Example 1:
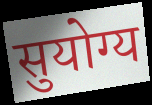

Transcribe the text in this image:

सुयोग्य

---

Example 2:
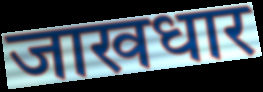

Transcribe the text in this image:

जाखधार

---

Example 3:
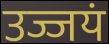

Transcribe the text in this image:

उज्जयं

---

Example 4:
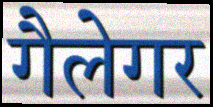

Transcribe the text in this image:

गैलेगर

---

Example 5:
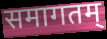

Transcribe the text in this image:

समागतम्